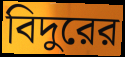
বিদুরের